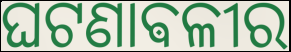
ଘଟଣାଵଳୀର